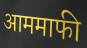
आममाफी